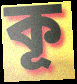
কূ